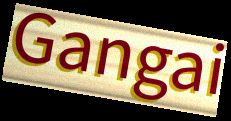
Gangai